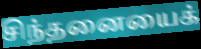
சிந்தனையைக்